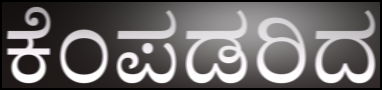
ಕೆಂಪಡರಿದ